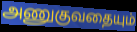
அணுகுவதையும்